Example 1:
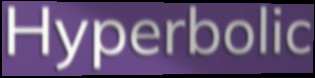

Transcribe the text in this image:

Hyperbolic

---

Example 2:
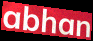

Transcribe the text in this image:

abhan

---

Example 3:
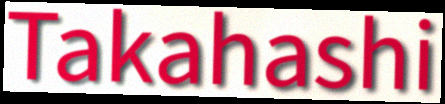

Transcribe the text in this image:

Takahashi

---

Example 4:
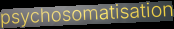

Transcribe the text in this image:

psychosomatisation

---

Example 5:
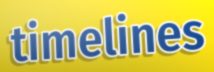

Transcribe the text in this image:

timelines